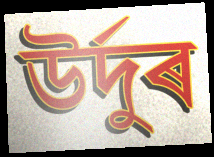
উৰ্দুৰ